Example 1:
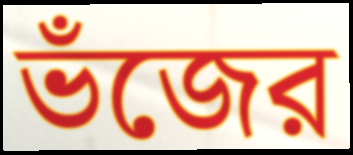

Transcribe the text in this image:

ভঁজের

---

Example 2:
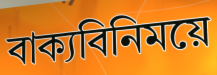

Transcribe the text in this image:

বাক্যবিনিময়ে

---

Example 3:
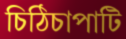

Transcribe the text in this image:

চিঠিচাপাটি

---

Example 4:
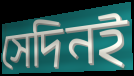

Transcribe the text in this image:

সেদিনই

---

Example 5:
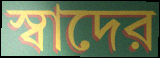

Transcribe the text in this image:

স্বাদের